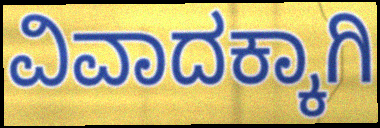
ವಿವಾದಕ್ಕಾಗಿ